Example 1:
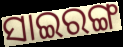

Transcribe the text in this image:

ସାଇରଙ୍ଗ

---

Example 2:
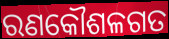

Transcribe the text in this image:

ରଣକୌଶଳଗତ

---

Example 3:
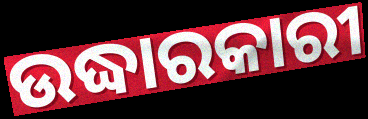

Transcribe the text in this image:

ଉଦ୍ଧାରକାରୀ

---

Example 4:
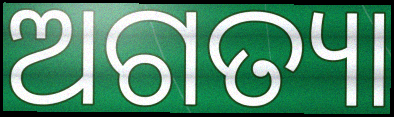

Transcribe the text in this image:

ଅଗତ୍ୟା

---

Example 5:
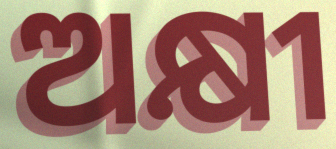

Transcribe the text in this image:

ଅକ୍ଷୀ